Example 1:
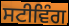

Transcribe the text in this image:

ਸਟੀਵਿੰਗ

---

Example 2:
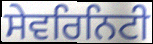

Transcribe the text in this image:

ਸੇਵਰਿਨਿਟੀ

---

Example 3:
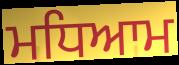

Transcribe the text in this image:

ਮਧਿਆਮ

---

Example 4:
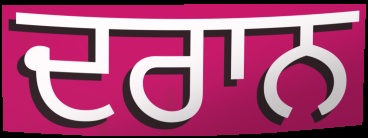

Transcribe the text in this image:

ਦਰਾਨ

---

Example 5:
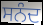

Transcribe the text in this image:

ਸਨੰਦ